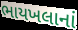
ભાયખલાનાં